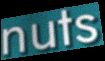
nuts